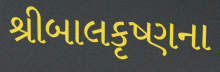
શ્રીબાલકૃષ્ણના